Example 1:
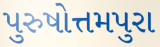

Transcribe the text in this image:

પુરુષોત્તમપુરા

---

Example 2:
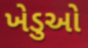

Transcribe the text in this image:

ખેડુઓ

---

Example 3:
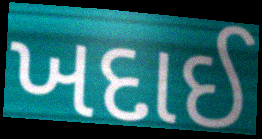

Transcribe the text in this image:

ખદાઈ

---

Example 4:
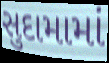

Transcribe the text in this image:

સુદામામાં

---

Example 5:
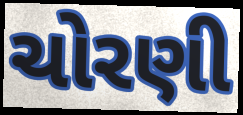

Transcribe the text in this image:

ચોરણી